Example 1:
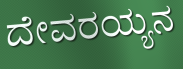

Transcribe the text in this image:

ದೇವರಯ್ಯನ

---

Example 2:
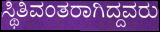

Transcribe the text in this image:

ಸ್ಥಿತಿವಂತರಾಗಿದ್ದವರು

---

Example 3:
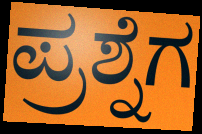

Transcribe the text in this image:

ಪ್ರಶ್ನೆಗ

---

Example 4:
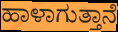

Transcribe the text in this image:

ಹಾಳಾಗುತ್ತಾನೆ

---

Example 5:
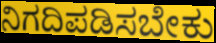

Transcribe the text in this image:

ನಿಗದಿಪಡಿಸಬೇಕು